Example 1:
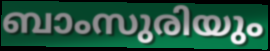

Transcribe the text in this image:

ബാംസുരിയും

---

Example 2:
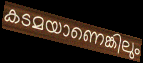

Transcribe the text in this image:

കടമയാണെങ്കിലും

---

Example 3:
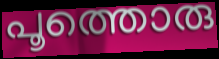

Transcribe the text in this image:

പൂത്തൊരു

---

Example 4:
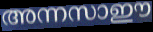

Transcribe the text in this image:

അന്നസാഈ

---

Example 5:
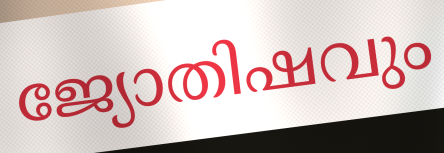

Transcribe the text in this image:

ജ്യോതിഷവും